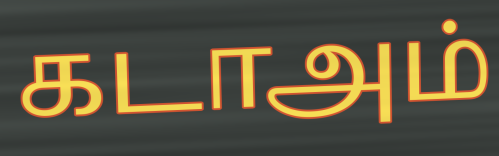
கடாஅம்